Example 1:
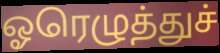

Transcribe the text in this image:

ஓரெழுத்துச்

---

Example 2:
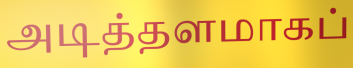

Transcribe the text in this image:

அடித்தளமாகப்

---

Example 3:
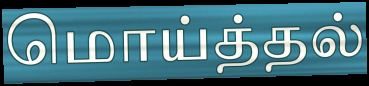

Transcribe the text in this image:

மொய்த்தல்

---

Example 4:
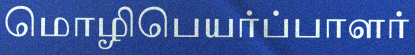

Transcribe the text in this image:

மொழிபெயர்ப்பாளர்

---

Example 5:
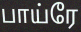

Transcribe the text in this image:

பாய்ரே